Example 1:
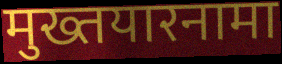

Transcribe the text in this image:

मुख्तयारनामा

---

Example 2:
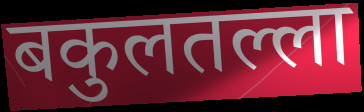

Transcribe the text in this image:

बकुलतल्ला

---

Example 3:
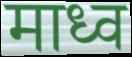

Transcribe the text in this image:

माध्व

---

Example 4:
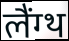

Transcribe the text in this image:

लैंग्थ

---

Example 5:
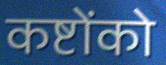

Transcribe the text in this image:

कष्टोंको